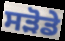
ਸੜੋਡੇ